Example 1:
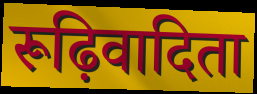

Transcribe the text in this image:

रूढ़िवादिता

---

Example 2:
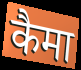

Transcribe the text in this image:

कैमा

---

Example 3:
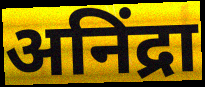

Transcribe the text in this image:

अनिंद्रा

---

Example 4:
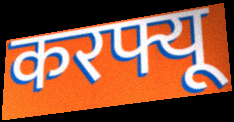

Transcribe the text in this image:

करफ्यू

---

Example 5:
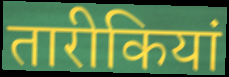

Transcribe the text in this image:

तारीकियां